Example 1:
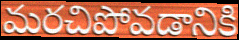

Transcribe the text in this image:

మరచిపోవడానికి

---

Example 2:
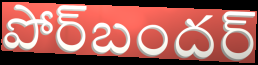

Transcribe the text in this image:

పోర్‌బందర్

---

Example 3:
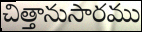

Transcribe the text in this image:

చిత్తానుసారము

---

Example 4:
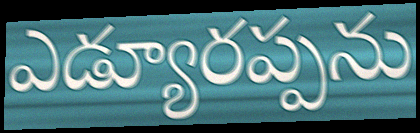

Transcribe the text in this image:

ఎడ్యూరప్పను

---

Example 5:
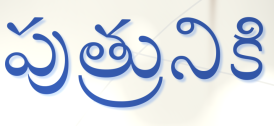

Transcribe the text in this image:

పుత్రునికి